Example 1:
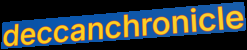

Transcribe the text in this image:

deccanchronicle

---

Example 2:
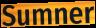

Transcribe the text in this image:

Sumner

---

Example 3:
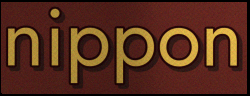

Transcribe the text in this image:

nippon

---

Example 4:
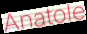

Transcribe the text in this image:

Anatole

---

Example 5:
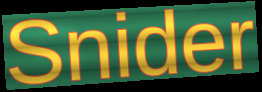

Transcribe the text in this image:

Snider